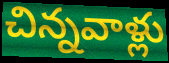
చిన్నవాళ్లు